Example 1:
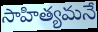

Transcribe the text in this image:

సాహిత్యమనే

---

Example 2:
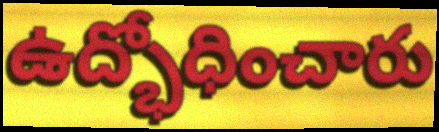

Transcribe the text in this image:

ఉద్భోధించారు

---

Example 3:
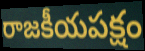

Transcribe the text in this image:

రాజకీయపక్షం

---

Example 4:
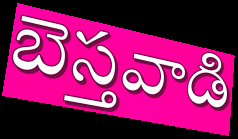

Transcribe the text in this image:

బెస్తవాడి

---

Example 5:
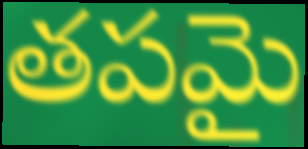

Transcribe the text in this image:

తపమై